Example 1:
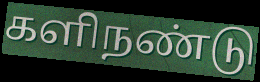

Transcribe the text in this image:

களிநண்டு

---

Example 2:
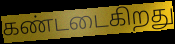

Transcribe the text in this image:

கண்டடைகிறது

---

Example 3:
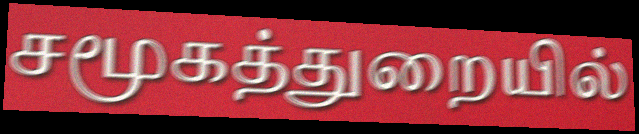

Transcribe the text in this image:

சமூகத்துறையில்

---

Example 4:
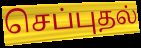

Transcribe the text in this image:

செப்புதல்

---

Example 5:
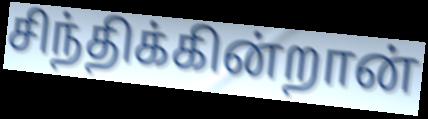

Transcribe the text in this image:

சிந்திக்கின்றான்